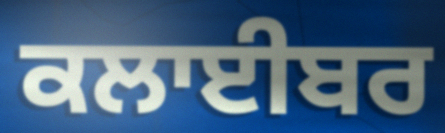
ਕਲਾਈਬਰ